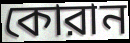
কোরান